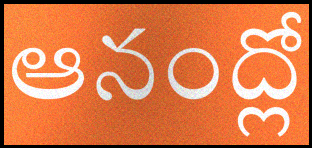
ఆనంద్లో